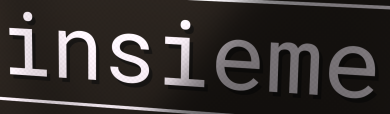
insieme